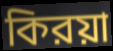
কিরয়া